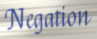
Negation